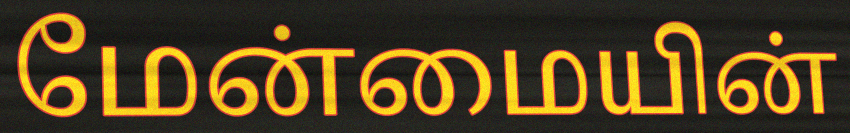
மேன்மையின்